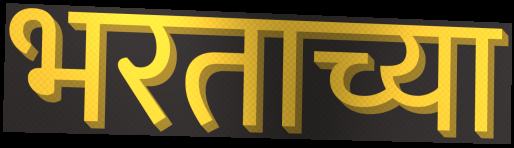
भरताच्या